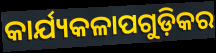
କାର୍ଯ୍ୟକଳାପଗୁଡ଼ିକର